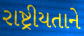
રાષ્ટ્રીયતાને